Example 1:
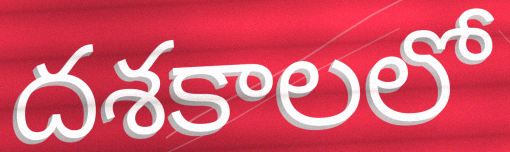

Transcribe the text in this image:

దశకాలలో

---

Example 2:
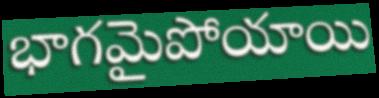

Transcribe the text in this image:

భాగమైపోయాయి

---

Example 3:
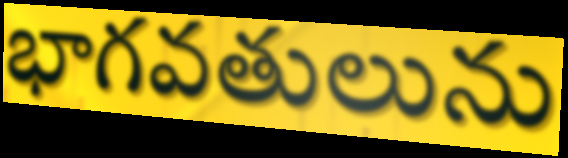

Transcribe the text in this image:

భాగవతులును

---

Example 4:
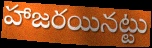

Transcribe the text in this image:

హాజరయినట్టు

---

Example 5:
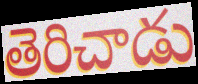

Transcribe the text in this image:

తెరిచాడు